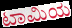
ಟಾಮಿಯ